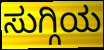
ಸುಗ್ಗಿಯ